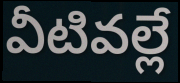
వీటివల్లే